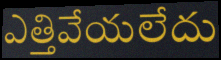
ఎత్తివేయలేదు